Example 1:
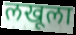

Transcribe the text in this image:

लखूला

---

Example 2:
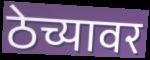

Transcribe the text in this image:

ठेच्यावर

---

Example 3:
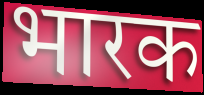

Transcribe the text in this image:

भारक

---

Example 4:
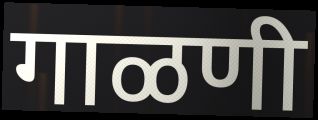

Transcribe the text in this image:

गाळणी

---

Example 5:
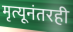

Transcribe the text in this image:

मृत्यूनंतरही